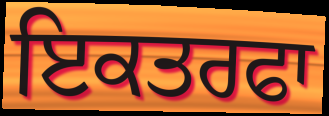
ਇਕਤਰਫਾ